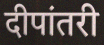
दीपांतरी